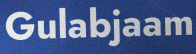
Gulabjaam